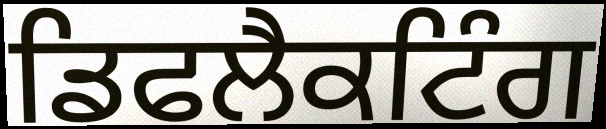
ਡਿਫਲੈਕਟਿੰਗ